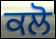
ਕਲੋ